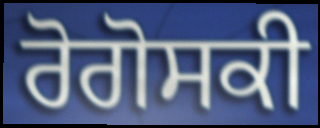
ਰੋਗੋਸਕੀ